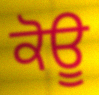
ਕੋਊ